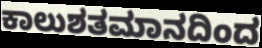
ಕಾಲುಶತಮಾನದಿಂದ